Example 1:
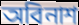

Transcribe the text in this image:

অবিনাশ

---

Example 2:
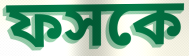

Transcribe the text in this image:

ফসকে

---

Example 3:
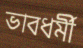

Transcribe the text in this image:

ভাবধর্মী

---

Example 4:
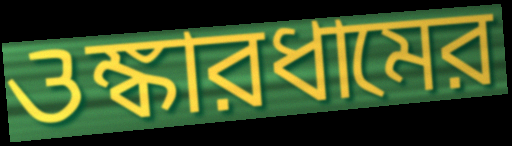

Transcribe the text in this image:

ওঙ্কারধামের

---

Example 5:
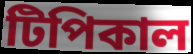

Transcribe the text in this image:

টিপিকাল